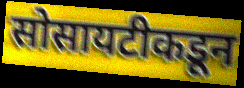
सोसायटीकडून